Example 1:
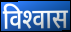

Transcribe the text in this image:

विश्‍वास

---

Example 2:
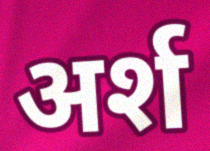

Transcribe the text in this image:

अर्श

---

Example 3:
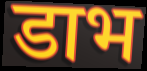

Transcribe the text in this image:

डाभ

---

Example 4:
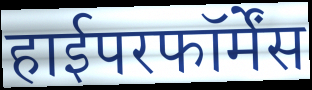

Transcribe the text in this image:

हाईपरफॉर्मेंस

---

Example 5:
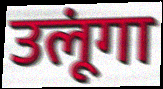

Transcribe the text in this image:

उलूंगा